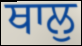
ਥਾਲੁ